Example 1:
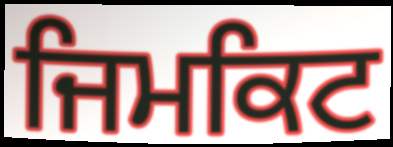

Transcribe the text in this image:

ਜਿਮਕਿਟ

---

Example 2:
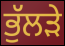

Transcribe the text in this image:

ਭੁੱਲੜੇ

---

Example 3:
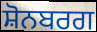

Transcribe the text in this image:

ਸ਼ੋਨਬਰਗ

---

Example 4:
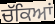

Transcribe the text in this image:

ਚੱਕਿਆਂ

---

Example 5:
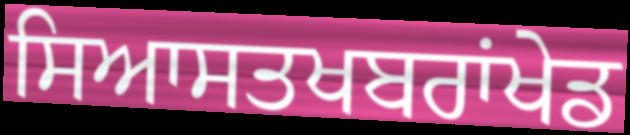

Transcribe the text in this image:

ਸਿਆਸਤਖਬਰਾਂਖੇਡ